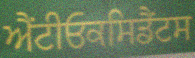
ਐਂਟੀਓਕਸਿਡੈਂਟਸ